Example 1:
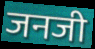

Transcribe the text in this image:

जनजी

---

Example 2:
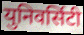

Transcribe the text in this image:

युनिवर्सिटी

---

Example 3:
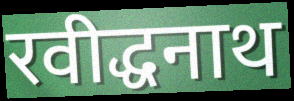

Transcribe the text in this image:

रवीद्धनाथ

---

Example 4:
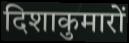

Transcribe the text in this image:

दिशाकुमारों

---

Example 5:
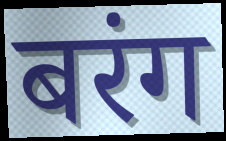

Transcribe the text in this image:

बरंग